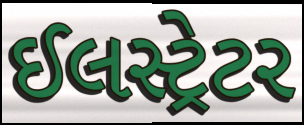
ઈલસ્ટ્રેટર